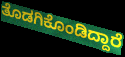
ತೊಡಗಿಕೊಂಡಿದ್ದಾರೆ